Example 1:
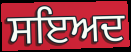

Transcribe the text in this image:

ਸਇਅਦ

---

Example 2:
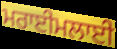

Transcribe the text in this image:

ਮਰਾਈਮਲਾਈ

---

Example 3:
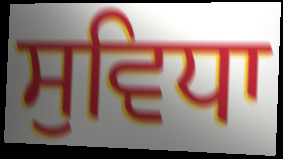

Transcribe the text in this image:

ਸੁਵਿਧਾ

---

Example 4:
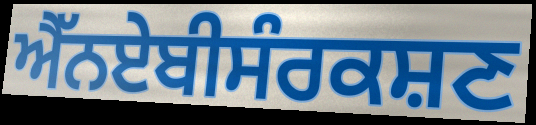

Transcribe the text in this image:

ਐੱਨਏਬੀਸੰਰਕਸ਼ਣ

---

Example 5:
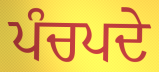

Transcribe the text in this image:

ਪੰਚਪਦੇ